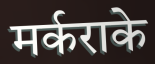
मर्कराके